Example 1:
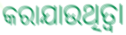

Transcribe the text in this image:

କରାଯାଉଥିତ୍ବା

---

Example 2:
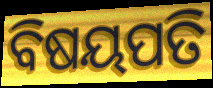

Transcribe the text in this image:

ବିଷୟପତି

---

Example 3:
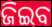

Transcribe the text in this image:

ଜିଇବ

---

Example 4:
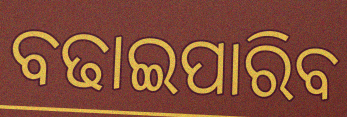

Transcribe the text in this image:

ବଢାଇପାରିବ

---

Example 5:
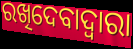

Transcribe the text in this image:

ରଖିଦେବାଦ୍ୱାରା